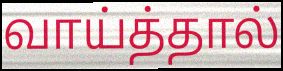
வாய்த்தால்